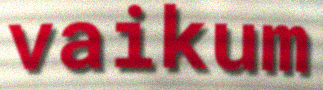
vaikum